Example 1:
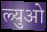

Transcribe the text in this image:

ल्युओ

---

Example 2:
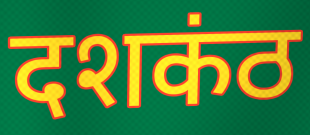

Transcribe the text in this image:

दशकंठ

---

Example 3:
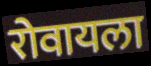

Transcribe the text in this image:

रोवायला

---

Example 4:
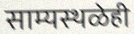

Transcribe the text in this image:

साम्यस्थळेही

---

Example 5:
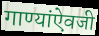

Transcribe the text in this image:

गाण्यांऐवजी